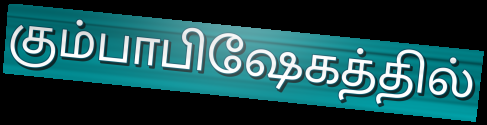
கும்பாபிஷேகத்தில்